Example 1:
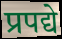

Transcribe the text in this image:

प्रपद्ये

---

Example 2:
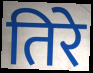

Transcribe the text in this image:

तिरे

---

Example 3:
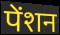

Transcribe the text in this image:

पेंशन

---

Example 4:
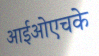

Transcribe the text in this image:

आईओएचके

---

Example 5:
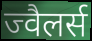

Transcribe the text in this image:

ज्वैलर्स